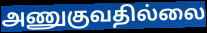
அணுகுவதில்லை